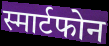
स्‍मार्टफोन